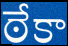
ఠేకా